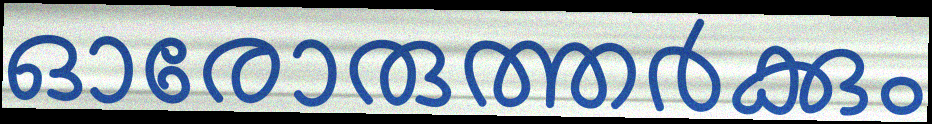
ഓരോരുത്തർക്കും